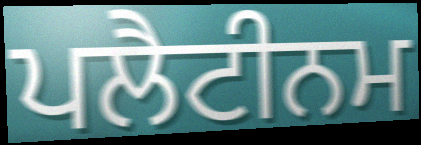
ਪਲੈਟੀਨਮ